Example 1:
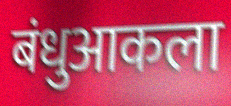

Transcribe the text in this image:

बंधुआकला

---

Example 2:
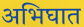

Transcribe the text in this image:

अभिघात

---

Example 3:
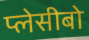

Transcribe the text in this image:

प्लेसीबो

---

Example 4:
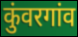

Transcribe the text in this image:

कुंवरगांव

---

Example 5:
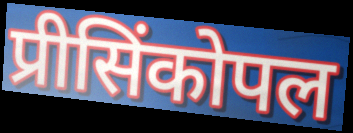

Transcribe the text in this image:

प्रीसिंकोपल